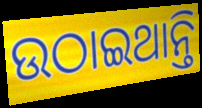
ଉଠାଇଥାନ୍ତି